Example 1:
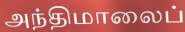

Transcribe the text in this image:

அந்திமாலைப்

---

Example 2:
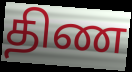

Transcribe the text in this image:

திண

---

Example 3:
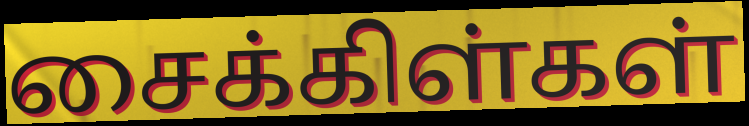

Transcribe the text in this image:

சைக்கிள்கள்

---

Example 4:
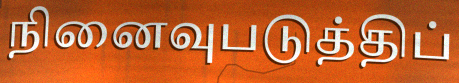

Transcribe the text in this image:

நினைவுபடுத்திப்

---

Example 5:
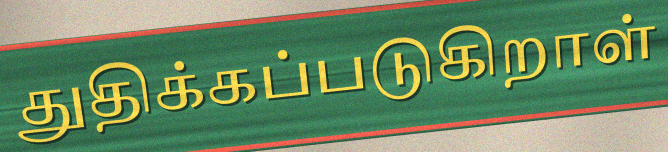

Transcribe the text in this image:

துதிக்கப்படுகிறாள்